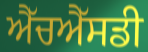
ਐੱਚਐੱਸਡੀ